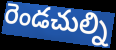
రెండచుల్ని